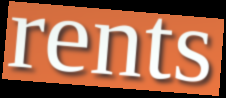
rents